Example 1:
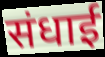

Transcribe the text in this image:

संधाई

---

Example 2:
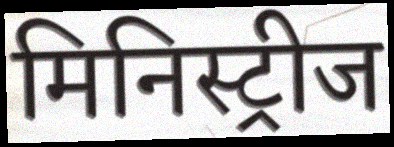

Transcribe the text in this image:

मिनिस्ट्रीज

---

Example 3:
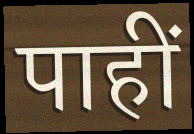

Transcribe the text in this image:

पाहीं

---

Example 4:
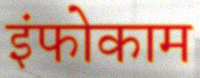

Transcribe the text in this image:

इंफोकाम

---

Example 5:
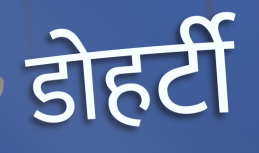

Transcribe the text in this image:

डोहर्टी